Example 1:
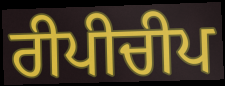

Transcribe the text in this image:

ਰੀਪੀਚੀਪ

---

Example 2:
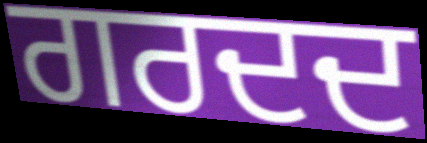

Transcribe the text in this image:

ਗਰਦਦ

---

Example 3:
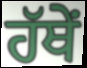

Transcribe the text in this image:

ਹੱਥੇਂ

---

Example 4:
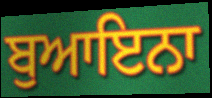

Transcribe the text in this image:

ਬੁਆਇਨਾ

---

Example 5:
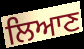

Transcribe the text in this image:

ਲਿਆਣ